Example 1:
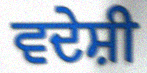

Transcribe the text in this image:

ਵਦੇਸ਼ੀ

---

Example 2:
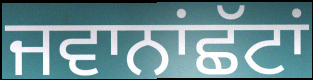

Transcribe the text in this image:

ਜਵਾਨਾਂਛੱਟਾਂ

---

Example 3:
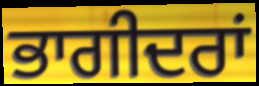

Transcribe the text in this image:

ਭਾਗੀਦਰਾਂ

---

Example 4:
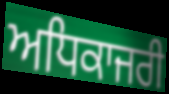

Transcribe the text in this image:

ਅਧਿਕਾਜਰੀ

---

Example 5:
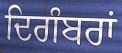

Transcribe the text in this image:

ਦਿਗੰਬਰਾਂ